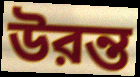
উরন্ত